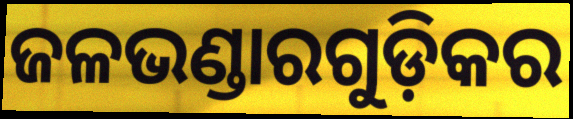
ଜଳଭଣ୍ଡାରଗୁଡ଼ିକର